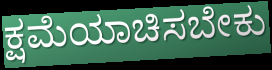
ಕ್ಷಮೆಯಾಚಿಸಬೇಕು